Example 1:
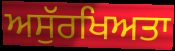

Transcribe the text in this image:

ਅਸੁੱਰਖਿਅਤਾ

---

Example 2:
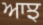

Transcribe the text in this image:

ਆਝ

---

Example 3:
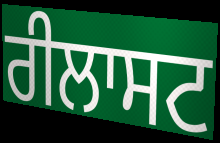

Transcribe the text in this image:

ਰੀਲਾਸਟ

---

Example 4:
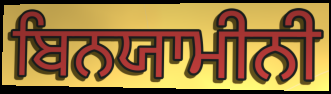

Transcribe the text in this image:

ਬਿਨਯਾਮੀਨੀ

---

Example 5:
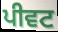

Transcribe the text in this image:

ਪੀਵਟ